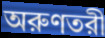
অরুণতরী